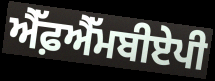
ਐੱਫ਼ਐੱਮਬੀਏਪੀ